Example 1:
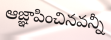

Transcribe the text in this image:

ఆజ్ఞాపించినవన్నీ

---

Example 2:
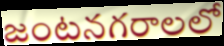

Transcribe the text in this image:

జంటనగరాలలో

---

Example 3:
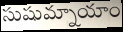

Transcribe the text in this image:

సుషుమ్నాయాం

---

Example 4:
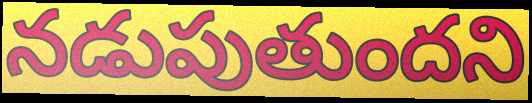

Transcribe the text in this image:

నడుపుతుందని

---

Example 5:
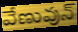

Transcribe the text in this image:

వేణువున్